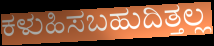
ಕಳುಹಿಸಬಹುದಿತ್ತಲ್ಲ